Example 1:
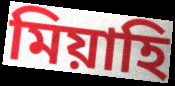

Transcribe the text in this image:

মিয়াহি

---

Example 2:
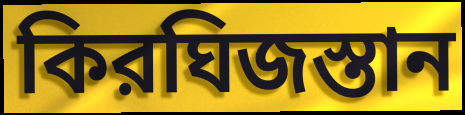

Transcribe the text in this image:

কিরঘিজস্তান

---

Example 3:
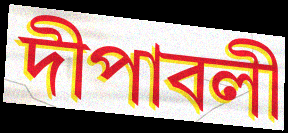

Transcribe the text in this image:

দীপাবলী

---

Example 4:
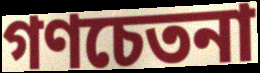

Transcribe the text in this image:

গণচেতনা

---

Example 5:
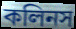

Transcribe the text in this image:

কলিনস